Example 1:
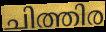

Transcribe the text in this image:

ചിത്തിര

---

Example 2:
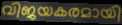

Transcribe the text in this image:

വിജയകരമായി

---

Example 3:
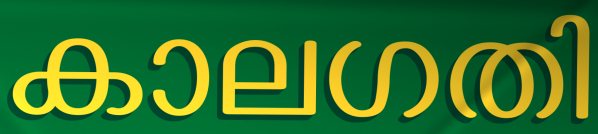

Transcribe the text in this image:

കാലഗതി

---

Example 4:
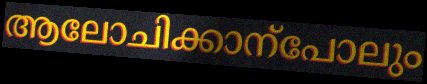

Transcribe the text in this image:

ആലോചിക്കാന്പോലും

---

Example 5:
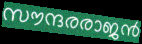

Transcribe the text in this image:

സൗന്ദരരാജൻ